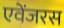
एवेंजरस